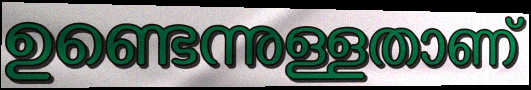
ഉണ്ടെന്നുള്ളതാണ്